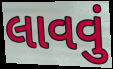
લાવવું